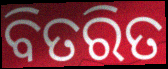
ବିତରିତ